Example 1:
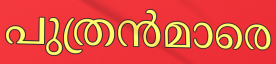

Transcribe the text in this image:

പുത്രൻമാരെ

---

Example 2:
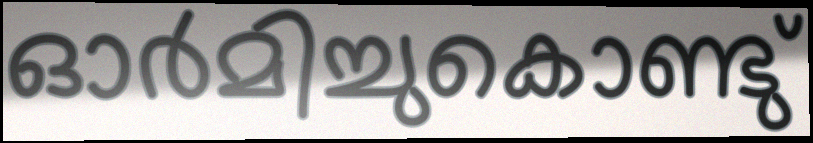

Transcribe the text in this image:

ഓർമിച്ചുകൊണ്ടു്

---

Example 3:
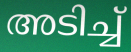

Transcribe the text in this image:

അടിച്ച്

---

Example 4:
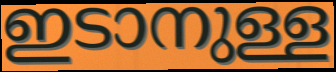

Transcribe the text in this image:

ഇടാനുള്ള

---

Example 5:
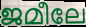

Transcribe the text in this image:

ജമീലേ